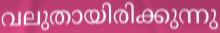
വലുതായിരിക്കുന്നു